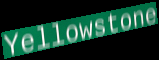
Yellowstone